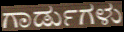
ಗಾರ್ಡುಗಳು